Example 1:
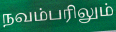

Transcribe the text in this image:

நவம்பரிலும்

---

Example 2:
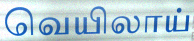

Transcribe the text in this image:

வெயிலாய்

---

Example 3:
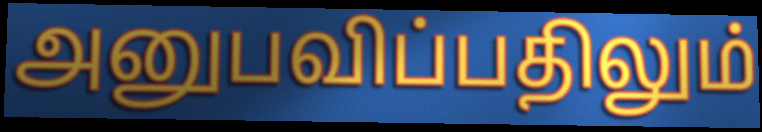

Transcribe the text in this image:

அனுபவிப்பதிலும்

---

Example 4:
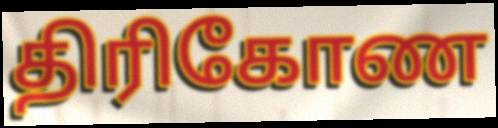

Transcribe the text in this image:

திரிகோண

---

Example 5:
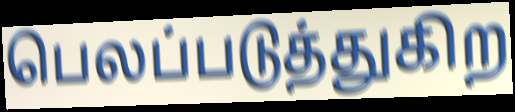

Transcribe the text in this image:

பெலப்படுத்துகிற